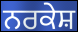
ਨਰਕੇਸ਼